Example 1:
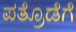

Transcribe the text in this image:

ಪತ್ರೊಡೆಗೆ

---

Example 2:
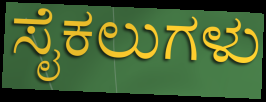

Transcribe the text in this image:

ಸೈಕಲುಗಳು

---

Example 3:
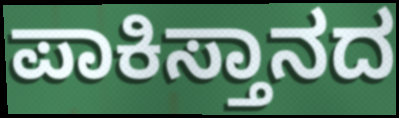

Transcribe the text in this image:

ಪಾಕಿಸ್ತಾನದ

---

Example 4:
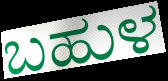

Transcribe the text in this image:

ಬಹುಳ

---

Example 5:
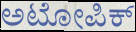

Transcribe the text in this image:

ಅಟೋಪಿಕ್